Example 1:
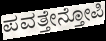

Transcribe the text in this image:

ಪವತ್ತೇನ್ತೋಪಿ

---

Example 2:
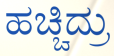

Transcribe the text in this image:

ಹಚ್ಚಿದ್ರು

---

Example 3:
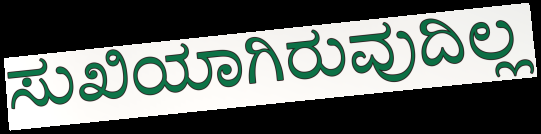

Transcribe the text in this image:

ಸುಖಿಯಾಗಿರುವುದಿಲ್ಲ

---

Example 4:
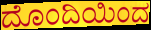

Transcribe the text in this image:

ದೊಂದಿಯಿಂದ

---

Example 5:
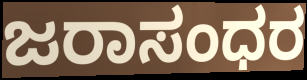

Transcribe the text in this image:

ಜರಾಸಂಧರ